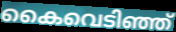
കൈവെടിഞ്ഞ്